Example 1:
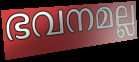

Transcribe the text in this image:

ഭവനമല്ല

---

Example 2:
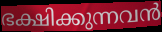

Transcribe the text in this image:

ഭക്ഷിക്കുന്നവൻ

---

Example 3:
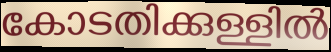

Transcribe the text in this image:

കോടതിക്കുള്ളിൽ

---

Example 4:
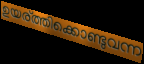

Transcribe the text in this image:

ഉയര്ത്തിക്കൊണ്ടുവന്ന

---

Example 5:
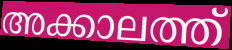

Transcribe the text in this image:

അക്കാലത്ത്